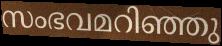
സംഭവമറിഞ്ഞു